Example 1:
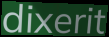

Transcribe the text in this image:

dixerit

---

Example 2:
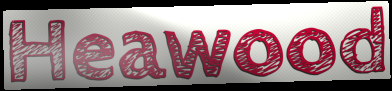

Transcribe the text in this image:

Heawood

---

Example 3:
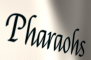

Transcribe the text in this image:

Pharaohs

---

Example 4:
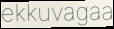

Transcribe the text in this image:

ekkuvagaa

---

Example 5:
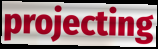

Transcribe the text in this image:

projecting